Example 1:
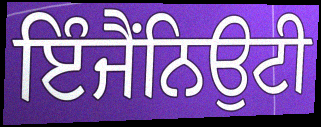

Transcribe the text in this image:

ਇੰਜੈਂਨਿਉਟੀ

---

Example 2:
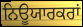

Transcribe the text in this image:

ਨਿਊਯਾਰਕਰਾਂ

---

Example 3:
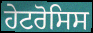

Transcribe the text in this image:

ਹੇਟਰੋਸਿਸ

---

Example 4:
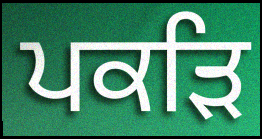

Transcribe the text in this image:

ਪਕੜਿ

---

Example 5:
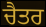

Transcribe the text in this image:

ਚੈਤਰ